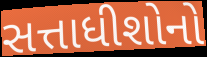
સત્તાધીશોનો